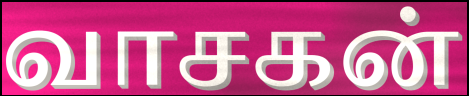
வாசகன்